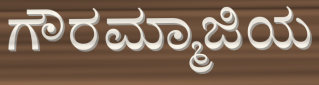
ಗೌರಮ್ಮಾಜಿಯ